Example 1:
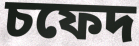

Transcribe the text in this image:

চফেদ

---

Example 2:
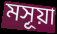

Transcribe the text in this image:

মসূয়া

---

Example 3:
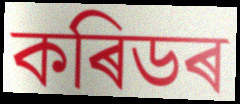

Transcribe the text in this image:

কৰিডৰ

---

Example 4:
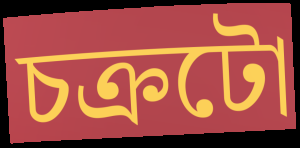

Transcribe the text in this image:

চক্ৰটো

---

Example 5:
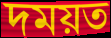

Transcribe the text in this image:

দময়ত